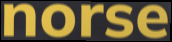
norse